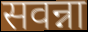
सवन्ना